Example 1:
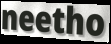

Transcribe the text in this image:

neetho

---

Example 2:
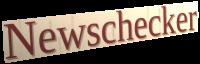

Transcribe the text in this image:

Newschecker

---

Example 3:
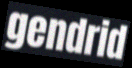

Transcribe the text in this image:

gendrid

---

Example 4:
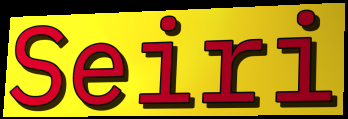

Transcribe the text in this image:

Seiri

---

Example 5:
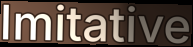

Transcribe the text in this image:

Imitative